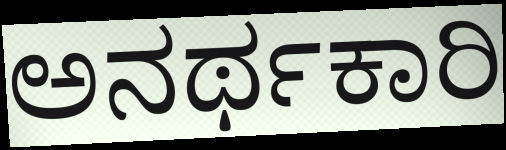
ಅನರ್ಥಕಾರಿ